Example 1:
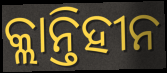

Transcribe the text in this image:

କ୍ଲାନ୍ତିହୀନ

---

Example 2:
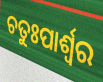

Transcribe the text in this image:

ଚତୁଃପାର୍ଶ୍ଵର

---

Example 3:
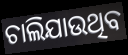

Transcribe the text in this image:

ଚାଲିଯାଉଥିବ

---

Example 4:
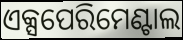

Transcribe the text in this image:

ଏକ୍ସପେରିମେଣ୍ଟାଲ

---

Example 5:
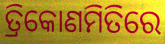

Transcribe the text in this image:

ତ୍ରିକୋଣମିତିରେ